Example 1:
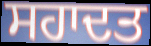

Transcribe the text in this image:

ਸਹਾਦਤ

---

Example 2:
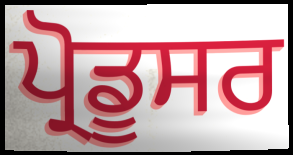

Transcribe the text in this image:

ਪ੍ਰੋਡੂਸਰ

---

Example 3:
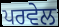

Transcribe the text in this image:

ਪਰਵੇਲ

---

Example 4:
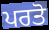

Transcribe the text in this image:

ਪਰਤੋ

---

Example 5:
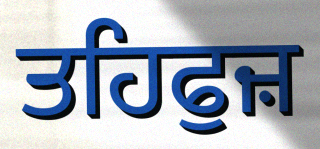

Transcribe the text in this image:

ਤਹਿਫੁਜ਼